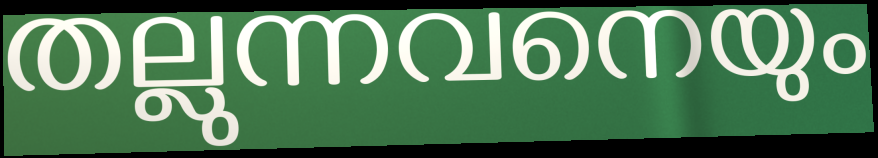
തല്ലുന്നവനെയും